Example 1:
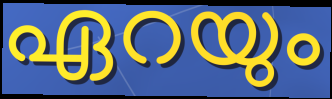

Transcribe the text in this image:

ഏറയും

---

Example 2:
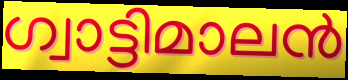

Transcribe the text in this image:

ഗ്വാട്ടിമാലൻ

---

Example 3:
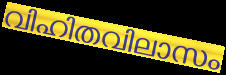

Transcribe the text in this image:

വിഹിതവിലാസം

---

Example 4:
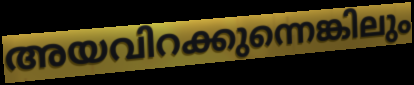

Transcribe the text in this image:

അയവിറക്കുന്നെങ്കിലും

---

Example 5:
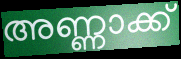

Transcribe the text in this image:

അണ്ണാക്ക്